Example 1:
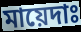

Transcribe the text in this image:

মায়েদাঃ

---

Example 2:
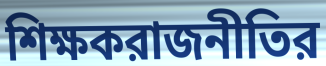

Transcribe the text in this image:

শিক্ষকরাজনীতির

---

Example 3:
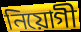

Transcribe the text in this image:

নিয়োগী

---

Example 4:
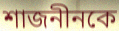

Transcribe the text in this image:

শাজনীনকে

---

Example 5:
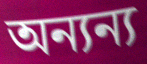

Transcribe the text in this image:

অন্যন্য